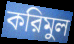
করিমুল